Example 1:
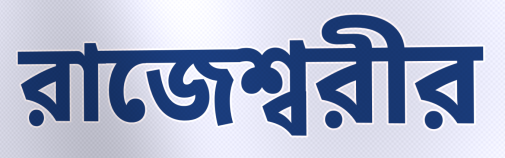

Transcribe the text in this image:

রাজেশ্বরীর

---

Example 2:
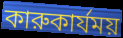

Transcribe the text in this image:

কারুকার্যময়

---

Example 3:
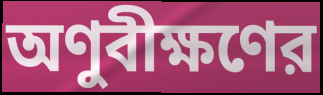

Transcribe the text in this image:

অণুবীক্ষণের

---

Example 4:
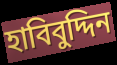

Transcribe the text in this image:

হাবিবুদ্দিন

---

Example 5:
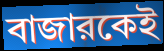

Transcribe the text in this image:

বাজারকেই